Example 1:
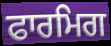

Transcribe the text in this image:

ਫਾਰਮਿਗ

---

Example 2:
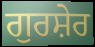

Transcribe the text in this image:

ਗੁਰਸ਼ੇਰ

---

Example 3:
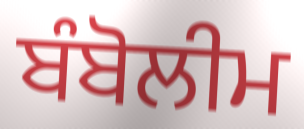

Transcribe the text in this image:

ਬੰਬੋਲੀਮ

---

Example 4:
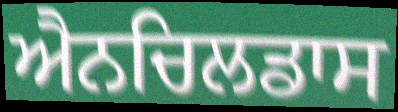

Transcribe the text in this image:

ਐਨਚਿਲਡਾਸ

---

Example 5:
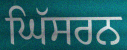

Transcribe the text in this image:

ਘਿੱਸਰਨ